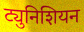
ट्युनिशियन